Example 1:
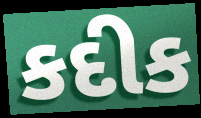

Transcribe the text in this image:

કદીક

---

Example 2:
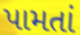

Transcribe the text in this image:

પામતાં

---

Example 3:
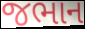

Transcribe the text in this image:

જભાન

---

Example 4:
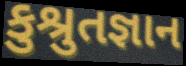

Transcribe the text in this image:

કુશ્રુતજ્ઞાન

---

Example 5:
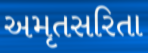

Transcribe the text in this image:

અમૃતસરિતા